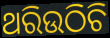
ଥରିଉଠିଚି